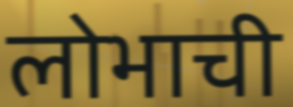
लोभाची